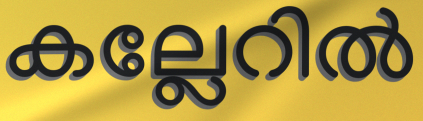
കല്ലേറിൽ